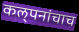
कल्पनांचाच